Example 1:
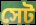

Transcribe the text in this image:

সেট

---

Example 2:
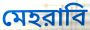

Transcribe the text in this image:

মেহরাবি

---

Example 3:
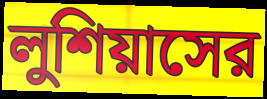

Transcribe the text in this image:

লুশিয়াসের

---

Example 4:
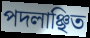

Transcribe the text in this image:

পদলাঞ্ছিত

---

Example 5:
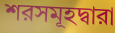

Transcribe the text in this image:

শরসমূহদ্বারা